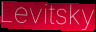
Levitsky